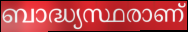
ബാദ്ധ്യസ്ഥരാണ്